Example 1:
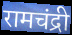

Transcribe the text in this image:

रामचंद्री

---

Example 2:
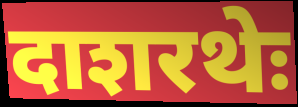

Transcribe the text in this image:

दाशरथेः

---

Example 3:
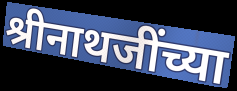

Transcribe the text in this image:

श्रीनाथजींच्या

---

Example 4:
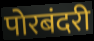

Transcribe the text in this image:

पोरबंदरी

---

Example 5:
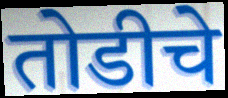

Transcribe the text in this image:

तोडीचे